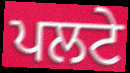
ਪਲਟੇ